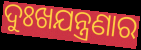
ଦୁଃଖଯନ୍ତ୍ରଣାର